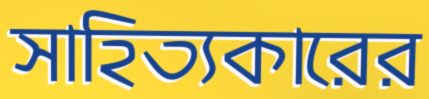
সাহিত্যকারের